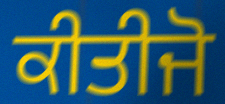
ਕੀਤੀਜੋ